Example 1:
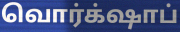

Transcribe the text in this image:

வொர்க்‌ஷாப்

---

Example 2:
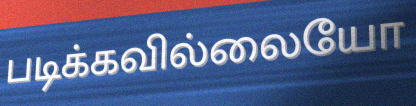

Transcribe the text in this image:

படிக்கவில்லையோ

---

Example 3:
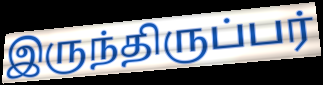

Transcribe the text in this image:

இருந்திருப்பர்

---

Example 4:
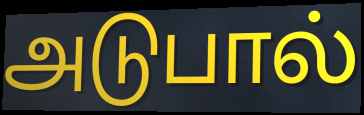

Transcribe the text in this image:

அடுபால்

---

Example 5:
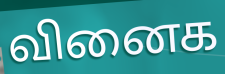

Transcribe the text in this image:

வினைக